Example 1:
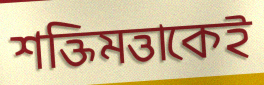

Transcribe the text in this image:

শক্তিমত্তাকেই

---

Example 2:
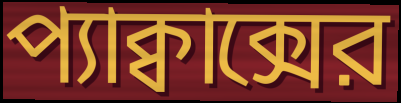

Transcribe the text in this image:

প্যাক্বাক্সের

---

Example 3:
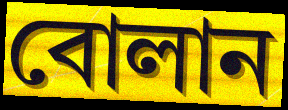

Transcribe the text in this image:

বোলান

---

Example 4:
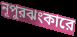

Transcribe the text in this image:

নূপুরঝংকারে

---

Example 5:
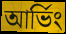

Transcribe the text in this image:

আর্ভিং